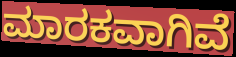
ಮಾರಕವಾಗಿವೆ